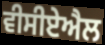
ਵੀਸੀਏਐਲ